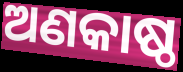
ଅଣକାଷ୍ଠ